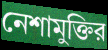
নেশামুক্তির